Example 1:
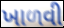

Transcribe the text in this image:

ખાળવી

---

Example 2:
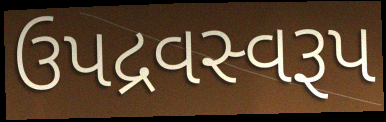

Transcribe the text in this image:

ઉપદ્રવસ્વરૂપ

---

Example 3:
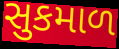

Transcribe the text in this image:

સુકમાળ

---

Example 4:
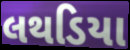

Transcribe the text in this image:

લથડિયા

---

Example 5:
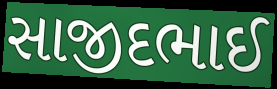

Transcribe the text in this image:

સાજીદભાઈ